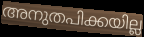
അനുതപിക്കയില്ല